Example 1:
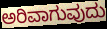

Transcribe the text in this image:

ಅರಿವಾಗುವುದು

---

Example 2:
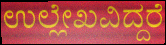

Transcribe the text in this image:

ಉಲ್ಲೇಖವಿದ್ದರೆ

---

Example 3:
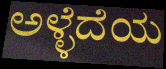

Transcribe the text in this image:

ಅಳ್ಳೆದೆಯ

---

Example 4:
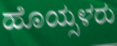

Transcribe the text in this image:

ಹೊಯ್ಸಳರು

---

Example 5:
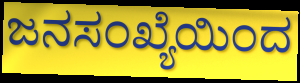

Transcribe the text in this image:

ಜನಸಂಖ್ಯೆಯಿಂದ